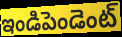
ఇండిపెండెంట్